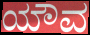
ಯೌವ